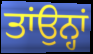
ਤਾਂਉਨ੍ਹਾਂ